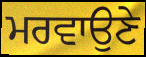
ਮਰਵਾਉਣੇ